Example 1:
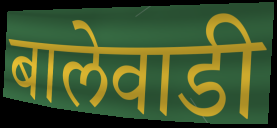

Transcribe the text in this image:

बालेवाडी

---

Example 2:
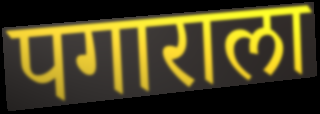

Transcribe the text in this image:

पगाराला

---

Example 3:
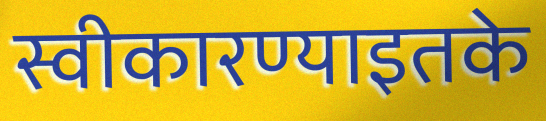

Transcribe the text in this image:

स्वीकारण्याइतके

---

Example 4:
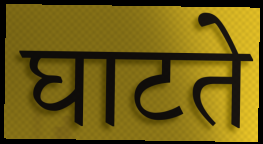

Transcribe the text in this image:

घाटते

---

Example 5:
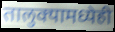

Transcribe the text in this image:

तालुक्यामध्येही